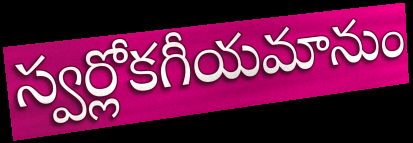
స్వర్లోకగీయమానుం